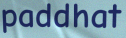
paddhat